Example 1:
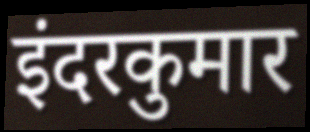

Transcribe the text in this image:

इंदरकुमार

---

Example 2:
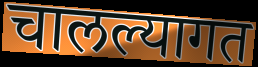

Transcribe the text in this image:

चालल्यागत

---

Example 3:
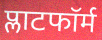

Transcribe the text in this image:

प्लाटफॉर्म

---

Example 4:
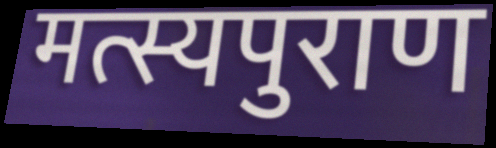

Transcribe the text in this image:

मत्स्यपुराण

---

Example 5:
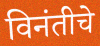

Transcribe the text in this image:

विनंतीचे